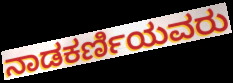
ನಾಡಕರ್ಣಿಯವರು